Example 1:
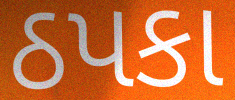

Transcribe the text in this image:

ઠપકા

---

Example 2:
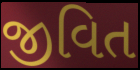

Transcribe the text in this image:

જીવિત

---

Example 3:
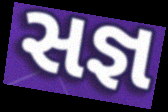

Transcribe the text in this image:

સજ્ઞ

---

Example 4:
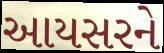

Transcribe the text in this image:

આયસરને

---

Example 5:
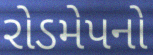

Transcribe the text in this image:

રોડમેપનો